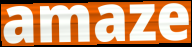
amaze